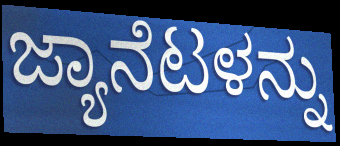
ಜ್ಯಾನೆಟಳನ್ನು